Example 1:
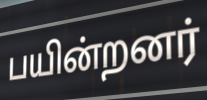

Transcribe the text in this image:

பயின்றனர்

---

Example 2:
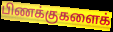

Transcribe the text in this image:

பிணக்குகளைக்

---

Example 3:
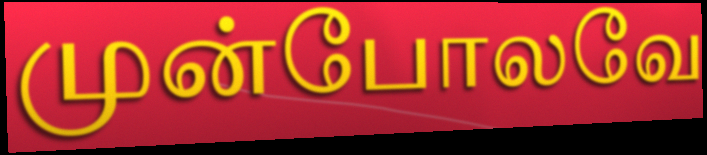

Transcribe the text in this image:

முன்போலவே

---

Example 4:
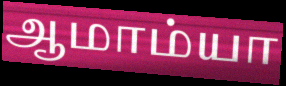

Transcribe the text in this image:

ஆமாம்யா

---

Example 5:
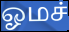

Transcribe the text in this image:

ஓமச்